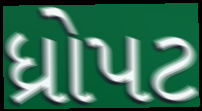
ધ્રોપટ